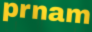
prnam